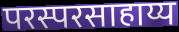
परस्परसाहाय्य